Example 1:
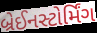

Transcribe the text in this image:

બ્રેઈનસ્ટોર્મિંગ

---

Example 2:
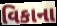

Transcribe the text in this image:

વિકાના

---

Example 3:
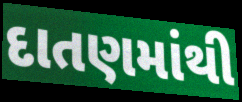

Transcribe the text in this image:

દાતણમાંથી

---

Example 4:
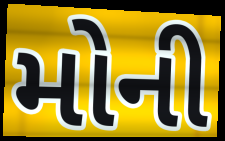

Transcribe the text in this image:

મોની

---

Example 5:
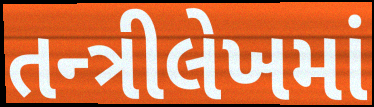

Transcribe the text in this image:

તન્ત્રીલેખમાં